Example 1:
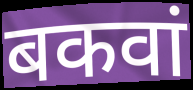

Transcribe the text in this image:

बकवां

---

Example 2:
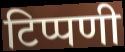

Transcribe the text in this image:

टिप्‍पणी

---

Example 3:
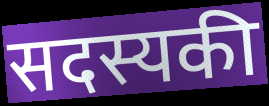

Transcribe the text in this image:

सदस्यकी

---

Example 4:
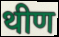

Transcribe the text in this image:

थीण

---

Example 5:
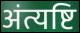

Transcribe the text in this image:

अंत्यष्टि